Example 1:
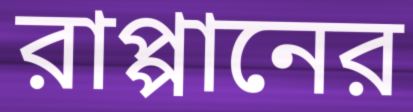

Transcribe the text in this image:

রাপ্পানের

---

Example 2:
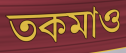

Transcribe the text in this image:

তকমাও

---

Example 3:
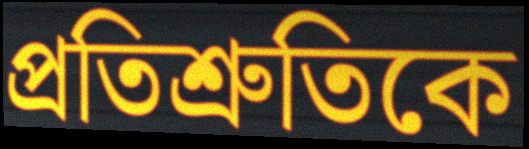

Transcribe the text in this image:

প্রতিশ্রুতিকে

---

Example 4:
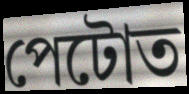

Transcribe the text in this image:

পেটোত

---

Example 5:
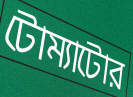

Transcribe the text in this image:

টোম্যাটোর